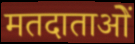
मतदाताओें